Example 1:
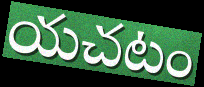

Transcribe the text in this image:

యచటం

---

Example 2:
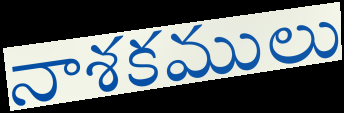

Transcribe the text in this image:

నాశకములు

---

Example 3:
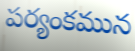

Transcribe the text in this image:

పర్యంకమున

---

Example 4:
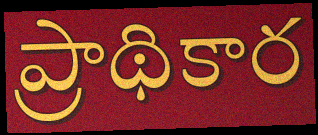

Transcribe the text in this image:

ప్రాథికార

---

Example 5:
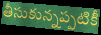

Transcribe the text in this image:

తీసుకున్నప్పటికీ